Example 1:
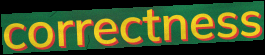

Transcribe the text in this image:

correctness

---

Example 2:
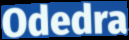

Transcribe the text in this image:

Odedra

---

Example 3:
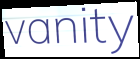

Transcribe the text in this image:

vanity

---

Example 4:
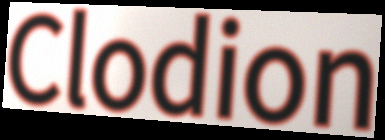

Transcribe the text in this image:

Clodion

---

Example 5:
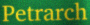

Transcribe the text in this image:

Petrarch